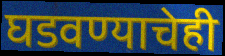
घडवण्याचेही